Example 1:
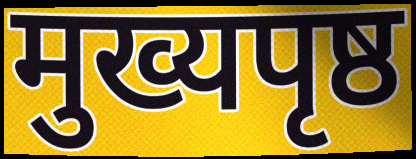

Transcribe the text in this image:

मुख्यपृष्ठ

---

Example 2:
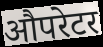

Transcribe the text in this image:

औपरेटर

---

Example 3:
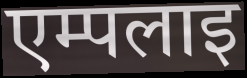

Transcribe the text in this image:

एम्पलाइ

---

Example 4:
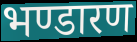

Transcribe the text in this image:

भण्डारण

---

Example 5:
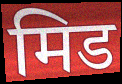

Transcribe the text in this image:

मिड